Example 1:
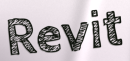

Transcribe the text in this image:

Revit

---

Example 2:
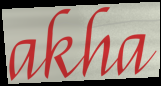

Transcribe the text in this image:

akha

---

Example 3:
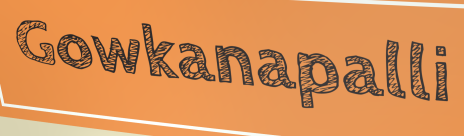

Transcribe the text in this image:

Gowkanapalli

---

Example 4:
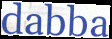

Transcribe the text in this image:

dabba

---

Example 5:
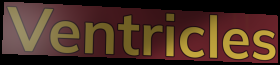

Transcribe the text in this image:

Ventricles